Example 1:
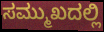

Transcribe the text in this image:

ಸಮ್ಮುಖದಲ್ಲಿ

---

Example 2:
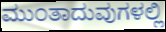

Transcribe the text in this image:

ಮುಂತಾದುವುಗಳಲ್ಲಿ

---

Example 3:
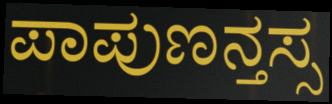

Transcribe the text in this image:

ಪಾಪುಣನ್ತಸ್ಸ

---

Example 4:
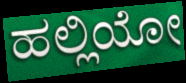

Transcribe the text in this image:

ಹಲ್ಲಿಯೋ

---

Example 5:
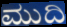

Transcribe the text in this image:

ಮುದಿ